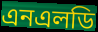
এনএলডি